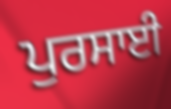
ਪੁਰਸਾਈ